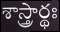
శాస్త్రార్థః